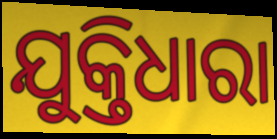
ଯୁକ୍ତିଧାରା